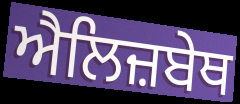
ਐਲਿਜ਼ਬੇਥ